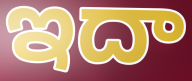
ఇదా